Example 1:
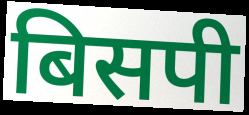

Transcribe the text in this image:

बिसपी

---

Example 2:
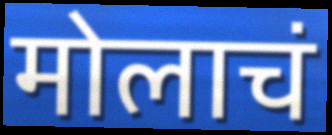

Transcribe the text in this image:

मोलाचं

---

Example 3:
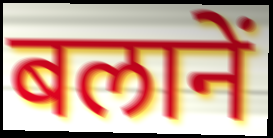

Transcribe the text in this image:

बलानें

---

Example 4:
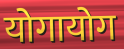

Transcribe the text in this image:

योगायोग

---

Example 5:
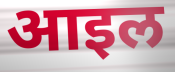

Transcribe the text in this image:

आइल